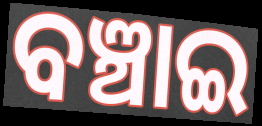
ବଞ୍ଚାଇ